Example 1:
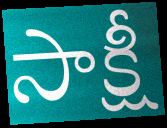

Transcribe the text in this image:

సాక్షీ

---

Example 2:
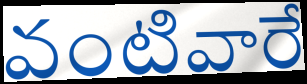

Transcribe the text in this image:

వంటివారే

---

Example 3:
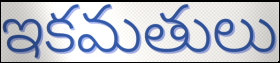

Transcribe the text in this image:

ఇకమతులు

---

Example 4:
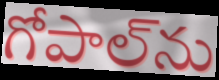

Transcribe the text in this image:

గోపాల్‌ను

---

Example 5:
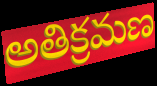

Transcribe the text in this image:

అతిక్రమణ